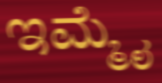
ಇಮ್ಮೈ